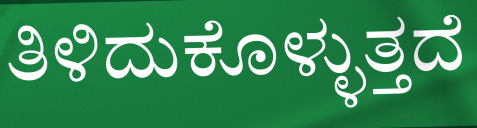
ತಿಳಿದುಕೊಳ್ಳುತ್ತದೆ